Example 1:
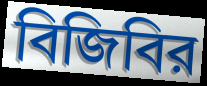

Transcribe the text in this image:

বিজিবির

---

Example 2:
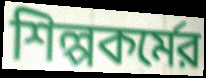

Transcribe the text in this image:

শিল্পকর্মের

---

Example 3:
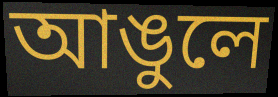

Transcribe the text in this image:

আঙুলে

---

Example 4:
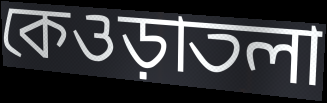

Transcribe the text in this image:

কেওড়াতলা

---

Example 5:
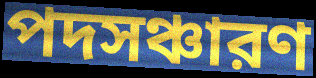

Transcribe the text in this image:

পদসঞ্চারণ